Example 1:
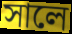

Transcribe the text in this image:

সালে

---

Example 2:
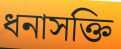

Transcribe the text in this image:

ধনাসক্তি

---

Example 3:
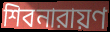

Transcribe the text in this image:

শিবনারায়ণ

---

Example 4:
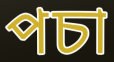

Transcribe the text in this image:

পচা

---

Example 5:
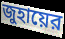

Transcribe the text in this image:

জুহায়ের